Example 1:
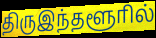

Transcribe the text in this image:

திருஇந்தளூரில்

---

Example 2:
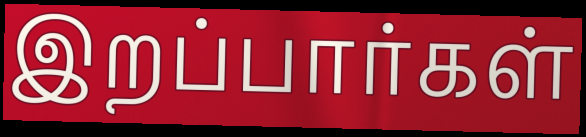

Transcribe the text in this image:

இறப்பார்கள்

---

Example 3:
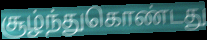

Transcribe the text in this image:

சூழ்ந்துகொண்டது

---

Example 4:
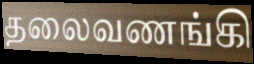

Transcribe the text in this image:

தலைவணங்கி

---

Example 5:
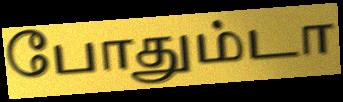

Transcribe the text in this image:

போதும்டா